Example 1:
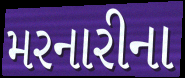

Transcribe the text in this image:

મરનારીના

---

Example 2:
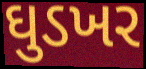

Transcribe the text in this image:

ઘુડખર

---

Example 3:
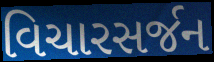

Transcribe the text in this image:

વિચારસર્જન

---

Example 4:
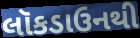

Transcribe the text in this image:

લૉકડાઉનથી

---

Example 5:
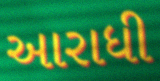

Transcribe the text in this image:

આરાધી